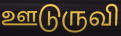
ஊடுருவி